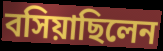
বসিয়াছিলেন